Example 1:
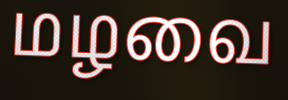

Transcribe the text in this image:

மழவை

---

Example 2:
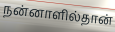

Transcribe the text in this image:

நன்னாளில்தான்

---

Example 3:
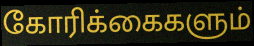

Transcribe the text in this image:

கோரிக்கைகளும்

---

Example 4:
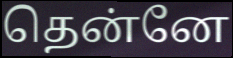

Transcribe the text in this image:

தென்னே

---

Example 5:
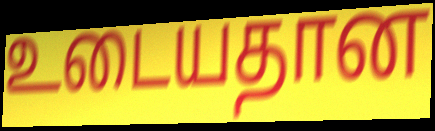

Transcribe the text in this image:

உடையதான